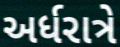
અર્ધરાત્રે